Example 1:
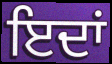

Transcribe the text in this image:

ਇਦਾਂ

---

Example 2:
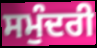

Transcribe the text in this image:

ਸਮੁੰਦਰੀ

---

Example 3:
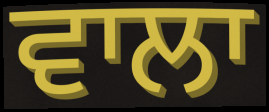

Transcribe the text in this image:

ਵਾਲਾ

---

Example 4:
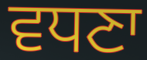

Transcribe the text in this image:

ਵਧਣਾ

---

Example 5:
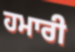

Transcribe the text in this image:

ਹਮਾਰੀ